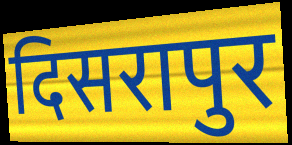
दिसरापुर